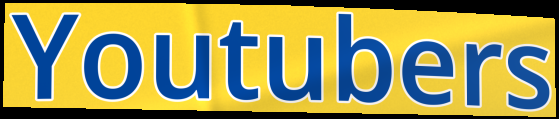
Youtubers